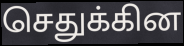
செதுக்கின